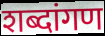
शब्दांगण